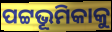
ପଟ୍ଟଭୂମିକାକୁ